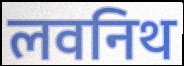
लवनिथ